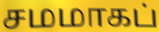
சமமாகப்